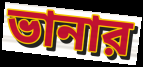
ভানার